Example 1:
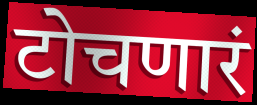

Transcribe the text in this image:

टोचणारं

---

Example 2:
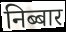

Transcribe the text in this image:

निब्बार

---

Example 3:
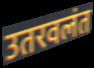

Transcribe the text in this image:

उतरवलंत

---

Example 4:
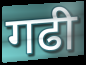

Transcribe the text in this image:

गढी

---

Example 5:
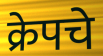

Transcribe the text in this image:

क्रेपचे